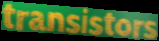
transistors